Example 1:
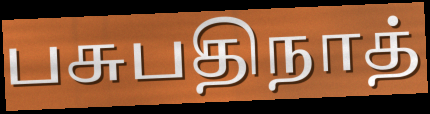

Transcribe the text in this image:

பசுபதிநாத்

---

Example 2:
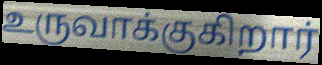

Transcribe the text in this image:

உருவாக்குகிறார்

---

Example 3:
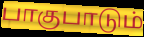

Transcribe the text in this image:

பாகுபாடும்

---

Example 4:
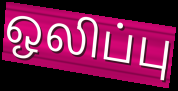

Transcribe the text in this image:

ஒலிப்பு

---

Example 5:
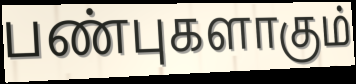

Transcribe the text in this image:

பண்புகளாகும்